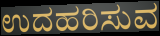
ಉದಹರಿಸುವ